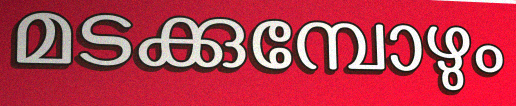
മടക്കുമ്പോഴും